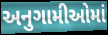
અનુગામીઓમાં